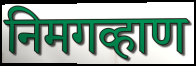
निमगव्हाण